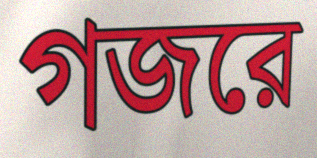
গজরে